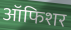
ऑफिशर